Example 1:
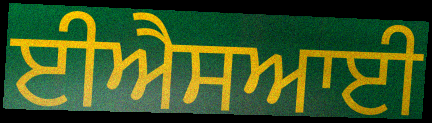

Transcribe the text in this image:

ਈਐਸਆਈ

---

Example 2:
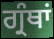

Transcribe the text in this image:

ਗ੍ਰੰਥਾਂ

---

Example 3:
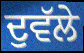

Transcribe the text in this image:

ਦੁਵੱਲੇ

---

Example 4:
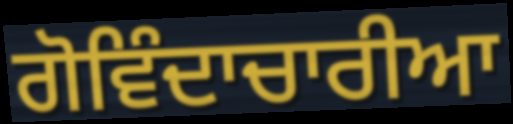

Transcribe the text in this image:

ਗੋਵਿੰਦਾਚਾਰੀਆ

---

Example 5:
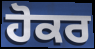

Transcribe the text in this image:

ਹੋਕਰ